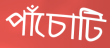
পাঁচোটি